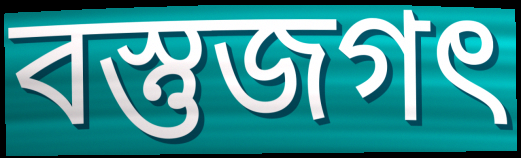
বস্তুজগৎ